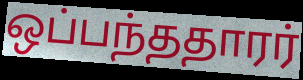
ஒப்பந்ததாரர்